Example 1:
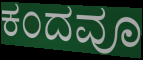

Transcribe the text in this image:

ಕಂದವೂ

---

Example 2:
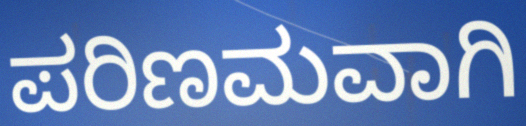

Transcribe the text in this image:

ಪರಿಣಮವಾಗಿ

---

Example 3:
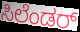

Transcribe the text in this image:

ಸಿಲೆಂಡರ್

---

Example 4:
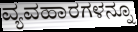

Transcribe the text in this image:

ವ್ಯವಹಾರಗಳನ್ನೂ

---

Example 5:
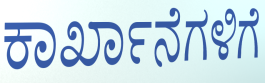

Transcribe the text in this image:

ಕಾರ್ಖಾನೆಗಳಿಗೆ